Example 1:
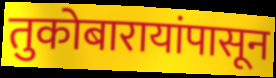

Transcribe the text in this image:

तुकोबारायांपासून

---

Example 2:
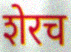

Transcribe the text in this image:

शेरच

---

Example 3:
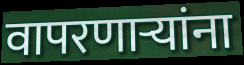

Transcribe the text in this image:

वापरणाऱ्यांना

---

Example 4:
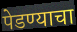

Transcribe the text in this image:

पेडण्याचा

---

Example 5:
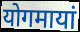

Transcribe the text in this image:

योगमायां